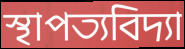
স্থাপত্যবিদ্যা